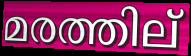
മരത്തില്